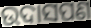
ଉଦାସପଣ